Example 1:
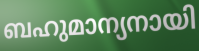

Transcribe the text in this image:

ബഹുമാന്യനായി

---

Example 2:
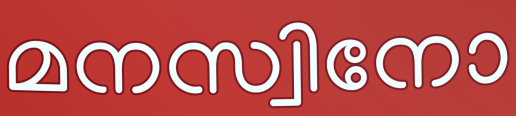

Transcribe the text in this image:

മനസ്വിനോ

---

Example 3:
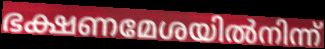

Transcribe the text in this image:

ഭക്ഷണമേശയിൽനിന്ന്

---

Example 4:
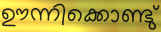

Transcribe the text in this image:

ഊന്നിക്കൊണ്ടു്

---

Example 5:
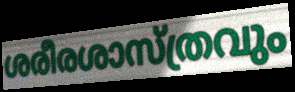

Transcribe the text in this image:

ശരീരശാസ്ത്രവും